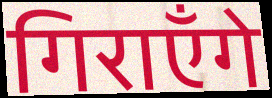
गिराएँगे